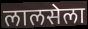
लालसेला